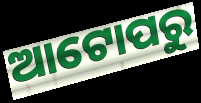
ଆଟୋପରୁ